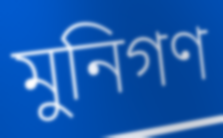
মুনিগণ